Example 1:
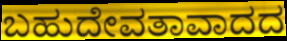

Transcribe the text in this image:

ಬಹುದೇವತಾವಾದದ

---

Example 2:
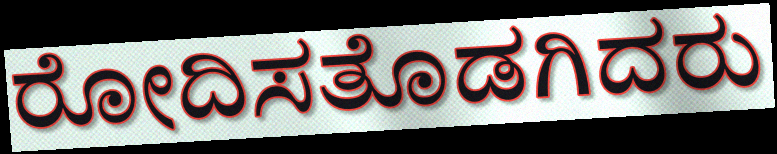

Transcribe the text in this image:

ರೋದಿಸತೊಡಗಿದರು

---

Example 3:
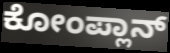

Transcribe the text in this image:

ಕೋಂಪ್ಲಾನ್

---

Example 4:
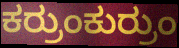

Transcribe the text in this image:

ಕರ್ರುಂಕುರ್ರುಂ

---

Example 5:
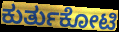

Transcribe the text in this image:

ಕುರ್ತುಕೋಟಿ